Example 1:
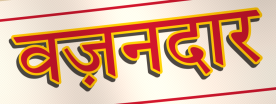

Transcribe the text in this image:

वज़नदार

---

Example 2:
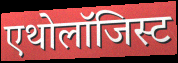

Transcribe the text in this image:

एथोलॉजिस्ट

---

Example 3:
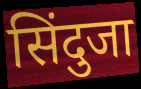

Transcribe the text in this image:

सिंदुजा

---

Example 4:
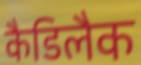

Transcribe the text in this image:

कैडिलैक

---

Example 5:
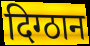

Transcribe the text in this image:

दिग्ठान